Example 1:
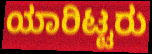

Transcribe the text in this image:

ಯಾರಿಟ್ಟರು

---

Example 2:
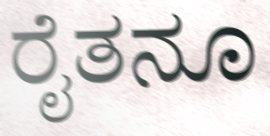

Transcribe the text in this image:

ರೈತನೂ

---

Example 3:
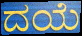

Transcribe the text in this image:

ದಯೆ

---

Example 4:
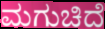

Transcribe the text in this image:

ಮಗುಚಿದೆ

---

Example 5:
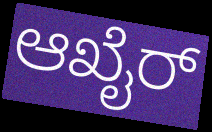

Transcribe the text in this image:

ಆಖೈರ್